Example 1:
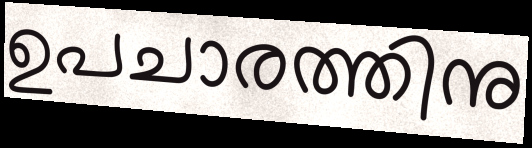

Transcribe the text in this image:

ഉപചാരത്തിനു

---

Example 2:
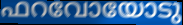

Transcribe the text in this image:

ഫറവോയോടു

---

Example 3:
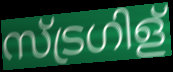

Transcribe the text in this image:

സ്ട്രഗിള്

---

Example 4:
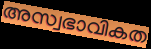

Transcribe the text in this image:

അസ്വഭാവികത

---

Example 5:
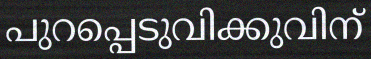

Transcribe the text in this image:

പുറപ്പെടുവിക്കുവിന്